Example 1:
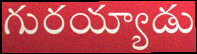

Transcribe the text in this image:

గురయ్యాడు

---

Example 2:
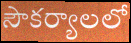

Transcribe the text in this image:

సౌకర్యాలలో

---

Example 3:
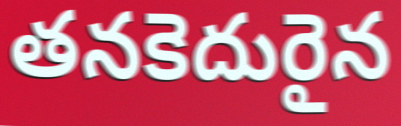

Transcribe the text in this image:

తనకెదురైన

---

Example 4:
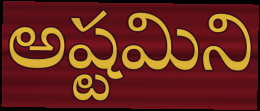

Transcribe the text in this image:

అష్టమిని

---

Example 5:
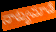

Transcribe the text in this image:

నాట్యమాడి